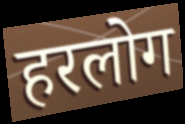
हरलोग